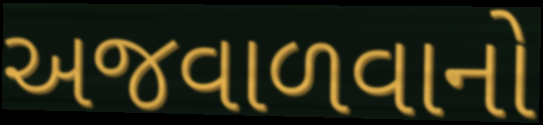
અજવાળવાનો